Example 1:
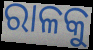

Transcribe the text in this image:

ରାଳକୁ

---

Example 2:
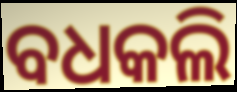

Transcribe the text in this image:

ବଧକଲି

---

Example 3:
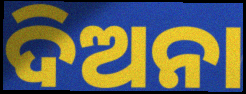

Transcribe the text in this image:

ଦିଅନା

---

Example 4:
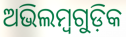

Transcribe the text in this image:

ଅଭିଲମ୍ବଗୁଡ଼ିକ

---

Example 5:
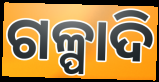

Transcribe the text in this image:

ଗଳ୍ପାଦି